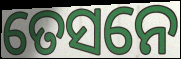
ତେସନେ